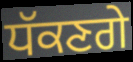
ਧੱਕਣਗੇ